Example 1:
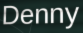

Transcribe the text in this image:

Denny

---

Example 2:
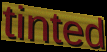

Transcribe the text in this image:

tinted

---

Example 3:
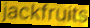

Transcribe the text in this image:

jackfruits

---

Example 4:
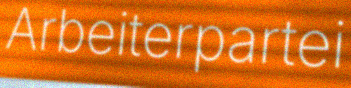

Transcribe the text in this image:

Arbeiterpartei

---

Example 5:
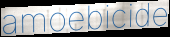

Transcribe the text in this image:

amoebicide